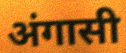
अंगासी